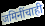
जमिनींचाही